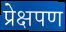
प्रेक्षपण